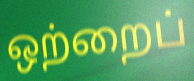
ஒற்றைப்